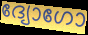
ദ്യോഗോ